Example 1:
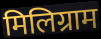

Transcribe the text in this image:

मिलिग्राम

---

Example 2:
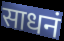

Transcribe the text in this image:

साधनं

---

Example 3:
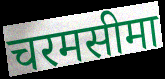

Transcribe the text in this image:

चरमसीमा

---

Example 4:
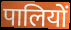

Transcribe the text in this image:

पालियों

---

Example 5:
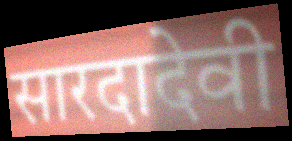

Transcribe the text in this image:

सारदादेवी